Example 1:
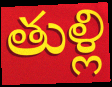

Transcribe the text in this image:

తుళ్లి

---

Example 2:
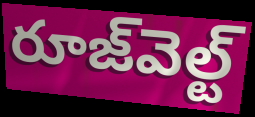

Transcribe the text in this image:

రూజ్‌వెల్ట్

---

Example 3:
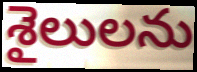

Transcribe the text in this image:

శైలులను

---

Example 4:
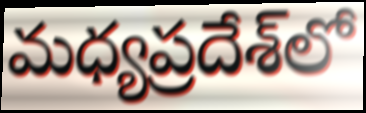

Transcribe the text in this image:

మధ్యప్రదేశ్‌లో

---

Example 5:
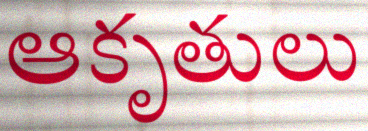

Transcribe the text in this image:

ఆకృతులు